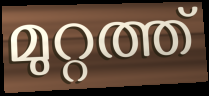
മുറ്റത്ത്